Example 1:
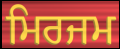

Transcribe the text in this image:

ਮਿਰਜਮ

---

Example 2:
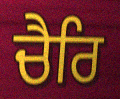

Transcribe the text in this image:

ਚੈਰਿ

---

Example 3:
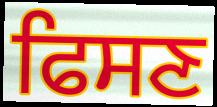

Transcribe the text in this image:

ਫਿਸਣ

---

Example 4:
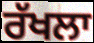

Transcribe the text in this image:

ਰੱਖਲਾ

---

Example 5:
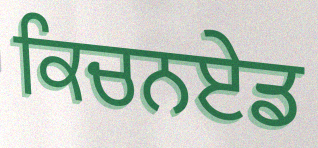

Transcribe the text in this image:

ਕਿਚਨਏਡ